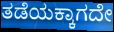
ತಡೆಯಕ್ಕಾಗದೇ